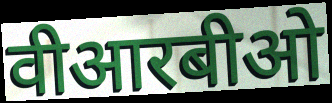
वीआरबीओ